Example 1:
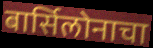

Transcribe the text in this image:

बार्सिलोनाचा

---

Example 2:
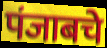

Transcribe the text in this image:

पंजाबचे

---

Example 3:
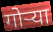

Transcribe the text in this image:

गोऱ्या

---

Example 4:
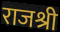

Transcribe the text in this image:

राजश्री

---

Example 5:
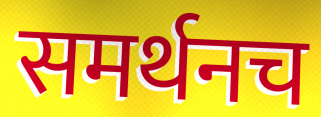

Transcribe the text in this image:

समर्थनच